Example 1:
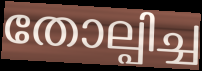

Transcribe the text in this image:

തോല്പിച്ച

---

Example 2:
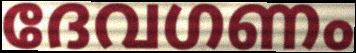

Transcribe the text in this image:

ദേവഗണം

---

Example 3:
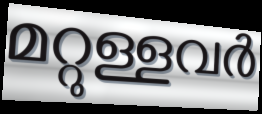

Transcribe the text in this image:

മറ്റുള്ളവർ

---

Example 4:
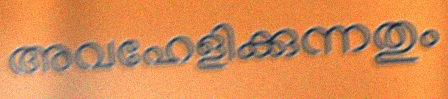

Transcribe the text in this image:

അവഹേളിക്കുന്നതും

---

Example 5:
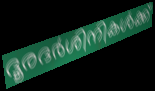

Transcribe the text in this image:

ദൂരദർശിനികൾക്ക്